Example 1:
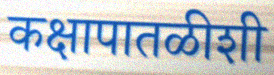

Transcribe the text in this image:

कक्षापातळीशी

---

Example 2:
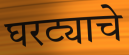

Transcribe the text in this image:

घरट्याचे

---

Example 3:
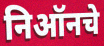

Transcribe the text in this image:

निऑनचे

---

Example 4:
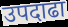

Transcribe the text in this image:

उपदाढा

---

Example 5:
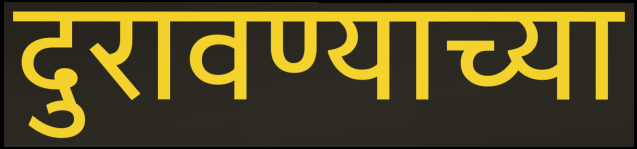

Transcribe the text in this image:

दुरावण्याच्या